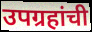
उपग्रहांची